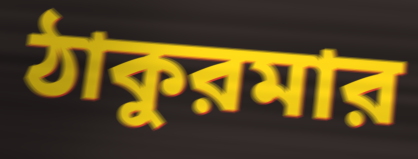
ঠাকুরমার